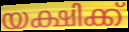
യക്ഷിക്ക്